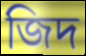
জিদ